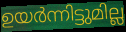
ഉയർന്നിട്ടുമില്ല